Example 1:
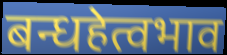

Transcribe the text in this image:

बन्धहेत्वभाव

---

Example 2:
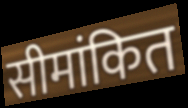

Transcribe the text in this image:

सीमांकित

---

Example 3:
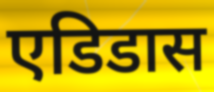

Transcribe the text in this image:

एडिडास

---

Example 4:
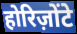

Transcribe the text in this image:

होरिज़ोंटे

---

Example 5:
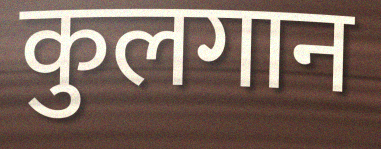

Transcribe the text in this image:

कुलगान